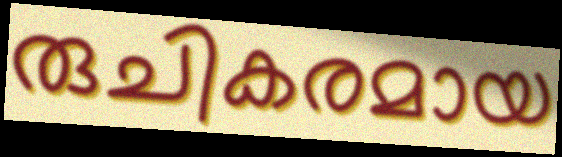
രുചികരമായ